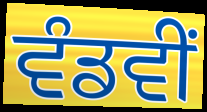
ਵੰਡਵੀਂ